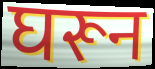
घरून